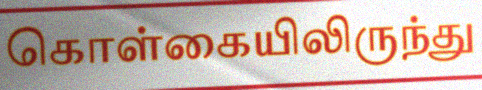
கொள்கையிலிருந்து